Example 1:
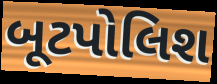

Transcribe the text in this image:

બૂટપોલિશ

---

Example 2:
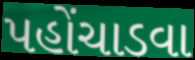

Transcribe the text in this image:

પહોંચાડવા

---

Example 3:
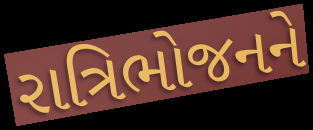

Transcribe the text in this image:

રાત્રિભોજનને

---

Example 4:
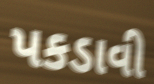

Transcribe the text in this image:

પકડાવી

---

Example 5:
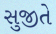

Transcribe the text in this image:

સુજીતે